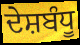
ਦੇਸ਼ਬੰਧੂ